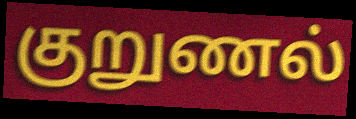
குறுணல்